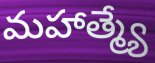
మహాత్మ్యే